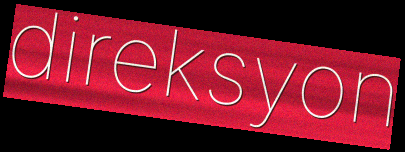
direksyon